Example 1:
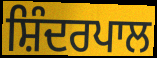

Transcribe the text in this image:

ਸ਼ਿੰਦਰਪਾਲ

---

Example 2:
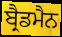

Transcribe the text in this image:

ਬ੍ਰੈਡਮੈਨ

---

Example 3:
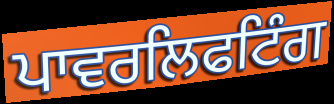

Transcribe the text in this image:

ਪਾਵਰਲਿਫਟਿੰਗ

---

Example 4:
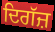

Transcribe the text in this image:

ਦਿਗੱਜ਼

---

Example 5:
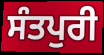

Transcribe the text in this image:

ਸੰਤਪੁਰੀ